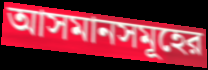
আসমানসমূহের